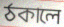
ঠকালে